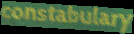
constabulary